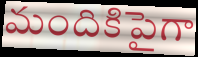
మందికిపైగా